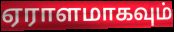
ஏராளமாகவும்